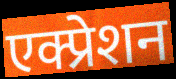
एक्प्रेशन